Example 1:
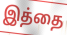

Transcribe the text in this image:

இத்தை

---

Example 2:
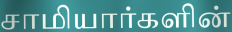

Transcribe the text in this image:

சாமியார்களின்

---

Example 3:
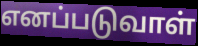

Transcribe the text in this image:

எனப்படுவாள்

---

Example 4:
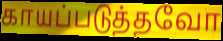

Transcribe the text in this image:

காயப்படுத்தவோ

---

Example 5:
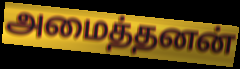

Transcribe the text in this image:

அமைத்தனன்